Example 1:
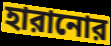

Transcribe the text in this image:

হারানোর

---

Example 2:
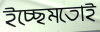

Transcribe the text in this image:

ইচ্ছেমতোই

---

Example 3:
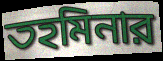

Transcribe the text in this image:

তহমিনার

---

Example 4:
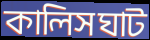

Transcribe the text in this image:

কালিসঘাট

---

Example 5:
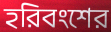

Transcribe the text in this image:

হরিবংশের